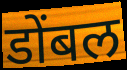
डोंबल